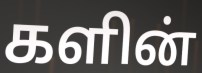
களின்